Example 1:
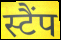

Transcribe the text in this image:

स्टैंप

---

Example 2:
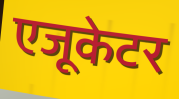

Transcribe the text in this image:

एजूकेटर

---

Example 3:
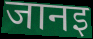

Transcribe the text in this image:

जानइ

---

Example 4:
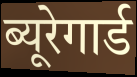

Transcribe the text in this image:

ब्यूरेगार्ड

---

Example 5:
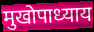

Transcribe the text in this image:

मुखोपाध्‍याय